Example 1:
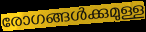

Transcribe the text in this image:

രോഗങ്ങൾക്കുമുള്ള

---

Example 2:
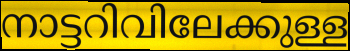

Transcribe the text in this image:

നാട്ടറിവിലേക്കുള്ള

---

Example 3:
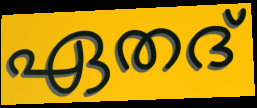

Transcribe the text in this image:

ഏതദ്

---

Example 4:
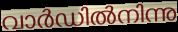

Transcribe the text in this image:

വാർഡിൽനിന്നു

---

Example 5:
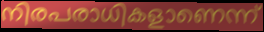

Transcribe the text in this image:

നിരപരാധികളാണെന്ന്